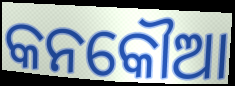
କନକୌଆ